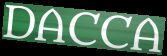
DACCA